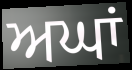
ਅਘਾਂ